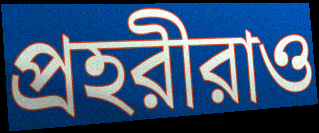
প্রহরীরাও